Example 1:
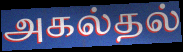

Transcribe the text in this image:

அகல்தல்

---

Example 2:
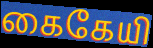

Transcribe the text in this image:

கைகேயி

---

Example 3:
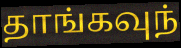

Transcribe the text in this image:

தாங்கவுந்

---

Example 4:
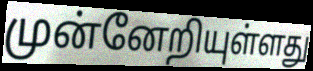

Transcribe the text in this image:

முன்னேறியுள்ளது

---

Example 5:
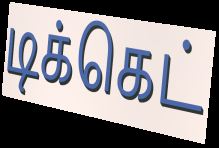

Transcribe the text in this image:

டிக்கெட்